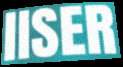
IISER